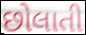
છોલાતી